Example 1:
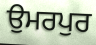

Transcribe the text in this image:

ਉਮਰਪੁਰ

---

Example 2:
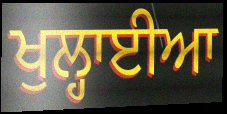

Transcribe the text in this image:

ਖੁਲ੍ਹਾਈਆ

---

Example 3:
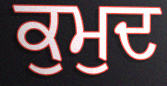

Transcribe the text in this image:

ਕੁਮੁਦ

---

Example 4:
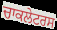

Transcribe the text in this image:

ਚਾਕਲੇਟਰਸ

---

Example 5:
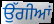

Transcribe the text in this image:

ਉੱਗੀਆਂ